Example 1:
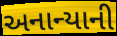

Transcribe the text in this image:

અનાન્યાની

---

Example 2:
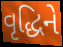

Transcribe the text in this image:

વૃદ્ધિને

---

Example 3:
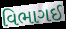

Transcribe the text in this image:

વિભાગઈ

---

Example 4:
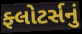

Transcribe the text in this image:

ફ્લોટર્સનું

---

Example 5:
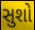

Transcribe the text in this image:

સુશો